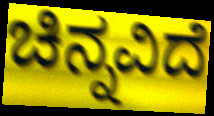
ಚಿನ್ನವಿದೆ